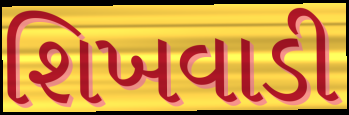
શિખવાડી